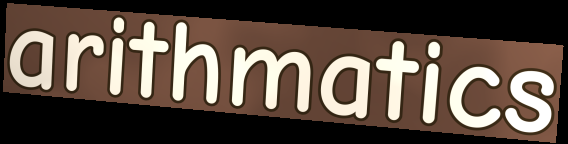
arithmatics